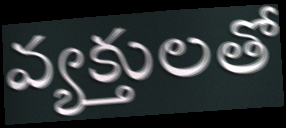
వ్యక్తులతో